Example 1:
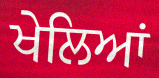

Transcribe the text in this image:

ਖੇਲਿਆਂ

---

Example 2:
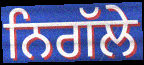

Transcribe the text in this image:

ਨਿਗੱਲੇ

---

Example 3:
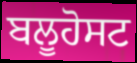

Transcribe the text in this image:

ਬਲੂਹੋਸਟ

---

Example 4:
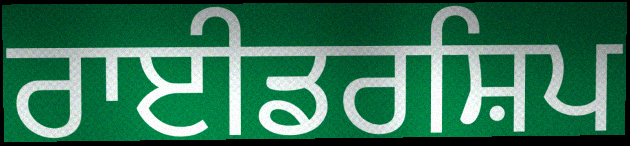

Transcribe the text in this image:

ਰਾਈਡਰਸ਼ਿਪ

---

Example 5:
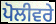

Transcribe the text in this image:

ਪੋਲੀਵਰੇ